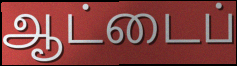
ஆட்டைப்